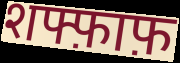
शफ्फ़ाफ़